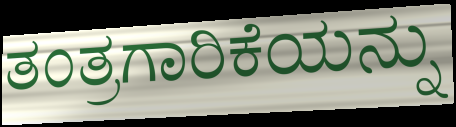
ತಂತ್ರಗಾರಿಕೆಯನ್ನು